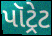
પૉટ્રેટ